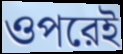
ওপরেই